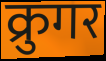
क्रुगर